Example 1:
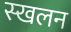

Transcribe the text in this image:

स्खलन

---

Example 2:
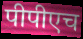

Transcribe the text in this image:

पीपीएच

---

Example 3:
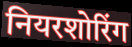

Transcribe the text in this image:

नियरशोरिंग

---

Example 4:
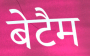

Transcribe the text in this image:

बेटैम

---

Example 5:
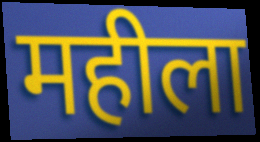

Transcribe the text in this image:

महीला